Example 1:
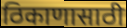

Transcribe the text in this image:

ठिकाणासाठी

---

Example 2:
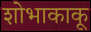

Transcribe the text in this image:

शोभाकाकू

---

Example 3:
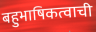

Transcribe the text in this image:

बहुभाषिकत्वाची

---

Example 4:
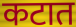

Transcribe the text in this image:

कटात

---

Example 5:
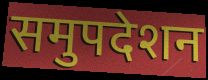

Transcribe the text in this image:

समुपदेशन